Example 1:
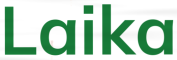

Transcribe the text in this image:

Laika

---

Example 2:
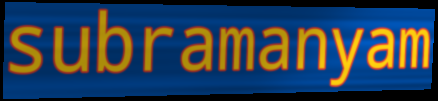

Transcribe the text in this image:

subramanyam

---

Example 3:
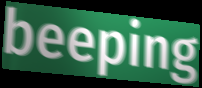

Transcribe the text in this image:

beeping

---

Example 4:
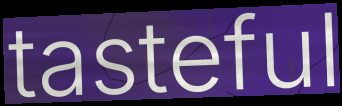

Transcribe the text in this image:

tasteful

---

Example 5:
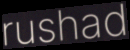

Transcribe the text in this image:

rushad